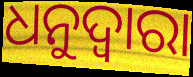
ଧନୁଦ୍ୱାରା